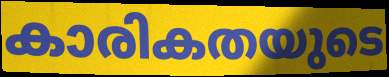
കാരികതയുടെ